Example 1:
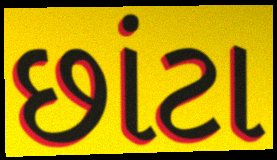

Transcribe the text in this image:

છાંટા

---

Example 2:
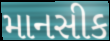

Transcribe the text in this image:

માનસીક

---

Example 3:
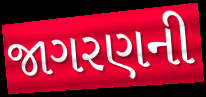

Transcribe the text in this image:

જાગરણની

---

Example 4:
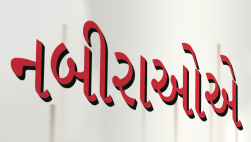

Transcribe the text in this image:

નબીરાઓએ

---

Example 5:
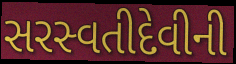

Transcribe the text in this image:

સરસ્વતીદેવીની